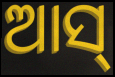
ଆସ୍